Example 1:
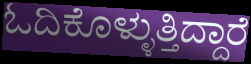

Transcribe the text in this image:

ಓದಿಕೊಳ್ಳುತ್ತಿದ್ದಾರೆ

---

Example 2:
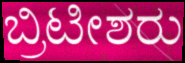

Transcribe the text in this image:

ಬ್ರಿಟೀಶರು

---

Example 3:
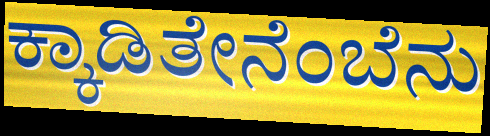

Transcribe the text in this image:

ಕ್ಕಾಡಿತೇನೆಂಬೆನು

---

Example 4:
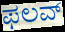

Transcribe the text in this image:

ಫಲವ್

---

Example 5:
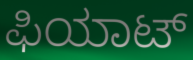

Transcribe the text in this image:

ಫಿಯಾಟ್